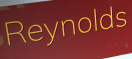
Reynolds